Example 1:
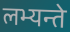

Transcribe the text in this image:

लभ्यन्ते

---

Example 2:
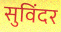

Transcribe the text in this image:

सुविंदर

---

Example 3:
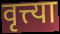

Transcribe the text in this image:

वृत्त्या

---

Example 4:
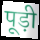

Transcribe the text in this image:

पूड़ी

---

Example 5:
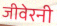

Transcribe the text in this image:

जीवेरनी